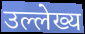
उल्लेख्य